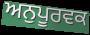
ਅਨੁਪੂਰਵਕ